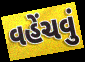
વહેંચવું